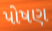
પોષણ